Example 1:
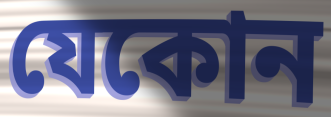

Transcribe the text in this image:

যেকোন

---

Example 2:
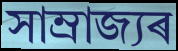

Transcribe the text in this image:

সাম্ৰাজ্যৰ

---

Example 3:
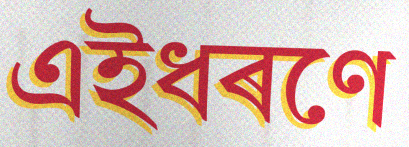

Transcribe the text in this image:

এইধৰণে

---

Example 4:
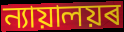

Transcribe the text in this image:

ন্যায়ালয়ৰ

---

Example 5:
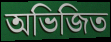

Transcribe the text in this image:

অভিজিত